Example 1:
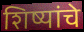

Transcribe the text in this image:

शिष्यांचे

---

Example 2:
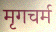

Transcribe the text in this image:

मृगचर्म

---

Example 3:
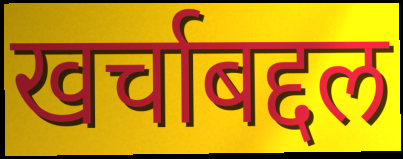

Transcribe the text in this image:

खर्चाबद्दल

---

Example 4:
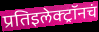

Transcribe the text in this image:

प्रतिइलेक्ट्रॉनचं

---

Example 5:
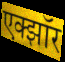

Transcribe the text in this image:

एक्झॉर